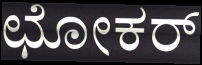
ಛೋಕರ್